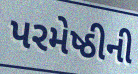
પરમેષ્ઠીની